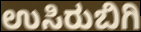
ಉಸಿರುಬಿಗಿ